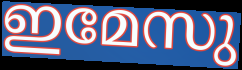
ഇമേസു